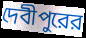
দেবীপুরের